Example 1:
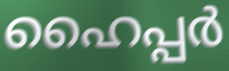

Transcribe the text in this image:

ഹൈപ്പർ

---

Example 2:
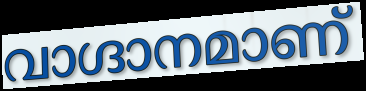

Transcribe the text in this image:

വാഗ്ദാനമാണ്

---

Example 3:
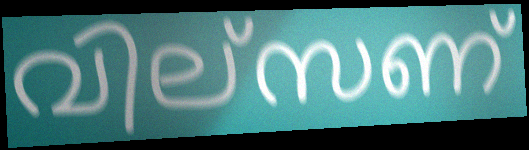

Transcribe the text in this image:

വില്സണ്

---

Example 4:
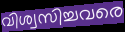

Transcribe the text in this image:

വിശ്വസിച്ചവരെ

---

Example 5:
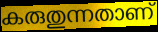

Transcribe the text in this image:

കരുതുന്നതാണ്